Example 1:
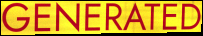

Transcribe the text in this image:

GENERATED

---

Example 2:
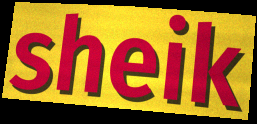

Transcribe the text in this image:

sheik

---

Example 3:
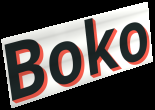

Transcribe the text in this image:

Boko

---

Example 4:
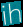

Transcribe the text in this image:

ih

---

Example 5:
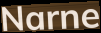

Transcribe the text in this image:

Narne